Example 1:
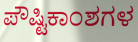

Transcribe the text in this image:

ಪೌಷ್ಟಿಕಾಂಶಗಳ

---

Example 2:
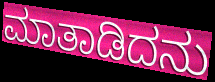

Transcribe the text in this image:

ಮಾತಾಡಿದನು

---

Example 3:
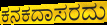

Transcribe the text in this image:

ಕನಕದಾಸರದು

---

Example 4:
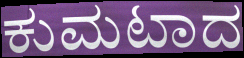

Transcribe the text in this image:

ಕುಮಟಾದ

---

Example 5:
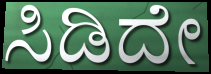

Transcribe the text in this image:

ಸಿಡಿದೇ